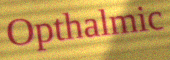
Opthalmic